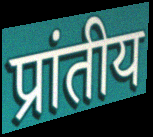
प्रांतीय